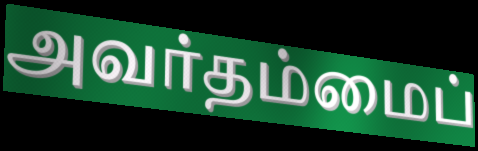
அவர்தம்மைப்